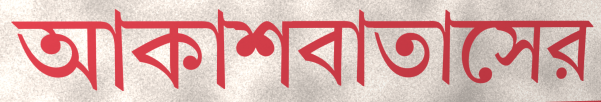
আকাশবাতাসের